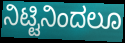
ನಿಟ್ಟಿನಿಂದಲೂ